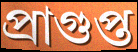
প্রাগুপ্ত